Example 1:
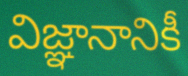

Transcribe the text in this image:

విజ్ఞానానికీ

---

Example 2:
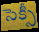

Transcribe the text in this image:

సెక్సీ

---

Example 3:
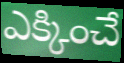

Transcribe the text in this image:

ఎక్కించే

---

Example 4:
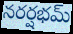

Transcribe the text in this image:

నరర్షభమ్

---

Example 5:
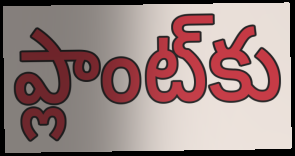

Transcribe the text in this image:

ప్లాంట్‌కు